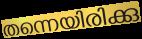
തന്നെയിരിക്കു